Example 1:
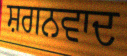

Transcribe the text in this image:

ਸ਼ਗਨਵਾਦ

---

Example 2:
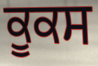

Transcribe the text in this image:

ਕੂਕਸ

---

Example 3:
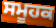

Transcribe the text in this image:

ਸਮੂਹਕ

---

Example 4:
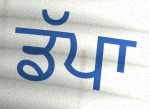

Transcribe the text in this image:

ਡੱਪਾ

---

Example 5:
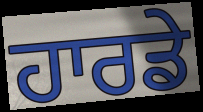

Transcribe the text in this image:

ਹਾਰਡੇ